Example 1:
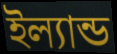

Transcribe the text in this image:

ইল্যান্ড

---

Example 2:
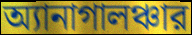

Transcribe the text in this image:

অ্যানাগালঞ্চার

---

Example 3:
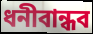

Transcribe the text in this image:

ধনীবান্ধব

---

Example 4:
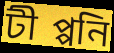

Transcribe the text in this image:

টীপ্পনি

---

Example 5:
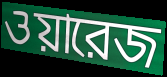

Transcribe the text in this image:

ওয়ারেজ